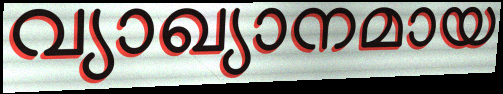
വ്യാഖ്യാനമായ